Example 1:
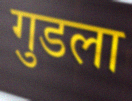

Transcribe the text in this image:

गुडला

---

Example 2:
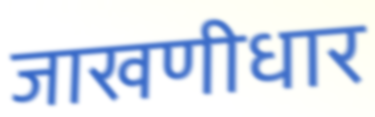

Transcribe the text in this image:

जाखणीधार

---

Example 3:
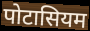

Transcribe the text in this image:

पोटासियम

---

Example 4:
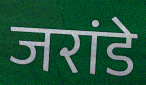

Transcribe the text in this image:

जरांडे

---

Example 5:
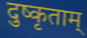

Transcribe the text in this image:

दुष्कृताम्